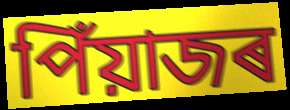
পিঁয়াজৰ